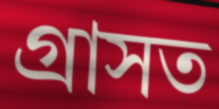
গ্ৰাসত